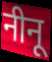
नीनू